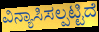
ವಿನ್ಯಾಸಿಸಲ್ಪಟ್ಟಿದೆ